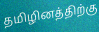
தமிழினத்திற்கு